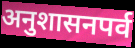
अनुशासनपर्व